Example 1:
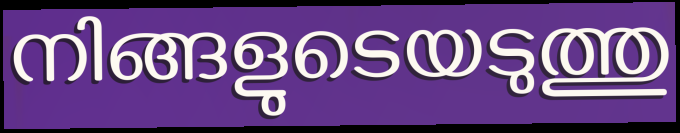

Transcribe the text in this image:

നിങ്ങളുടെയടുത്തു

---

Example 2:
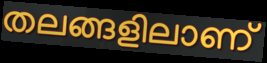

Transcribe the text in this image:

തലങ്ങളിലാണ്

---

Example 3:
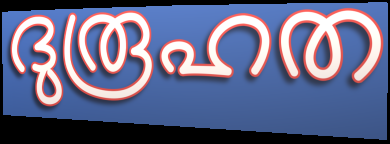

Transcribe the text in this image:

ദുരൂഹത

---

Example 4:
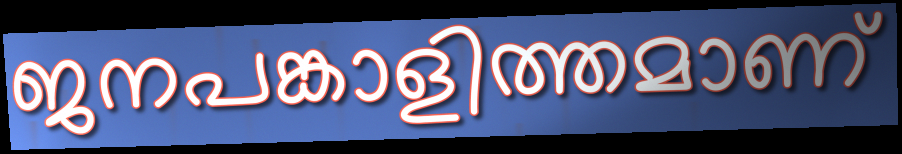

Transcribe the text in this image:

ജനപങ്കാളിത്തമാണ്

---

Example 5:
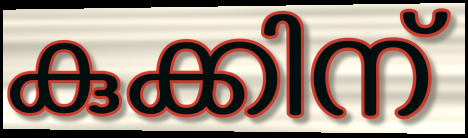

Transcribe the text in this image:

കുക്കിന്